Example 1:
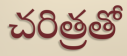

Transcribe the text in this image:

చరిత్రతో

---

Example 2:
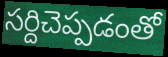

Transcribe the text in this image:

సర్దిచెప్పడంతో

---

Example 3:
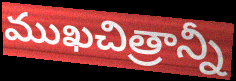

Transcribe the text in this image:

ముఖచిత్రాన్నీ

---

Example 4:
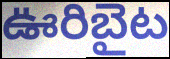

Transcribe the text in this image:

ఊరిబైట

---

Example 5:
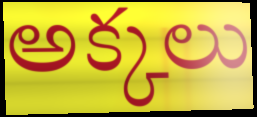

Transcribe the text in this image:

అక్కలు